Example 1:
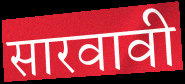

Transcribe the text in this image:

सारवावी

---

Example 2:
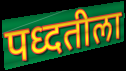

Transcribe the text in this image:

पध्दतीला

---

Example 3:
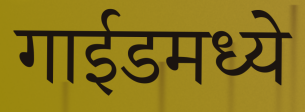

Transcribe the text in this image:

गाईडमध्ये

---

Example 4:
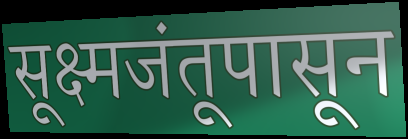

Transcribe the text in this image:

सूक्ष्मजंतूपासून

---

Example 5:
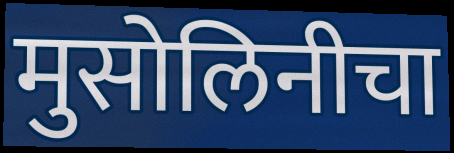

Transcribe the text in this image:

मुसोलिनीचा